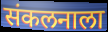
संकलनाला